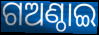
ଗଅଣ୍ଠାଇ